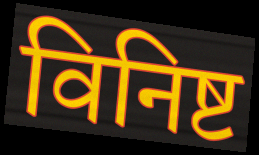
विनिष्ट